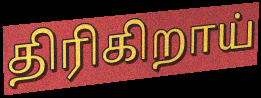
திரிகிறாய்